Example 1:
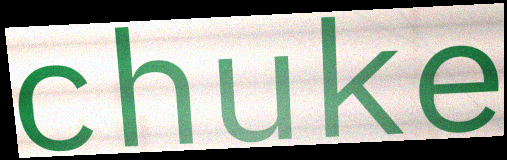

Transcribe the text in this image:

chuke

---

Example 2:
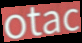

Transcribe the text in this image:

otac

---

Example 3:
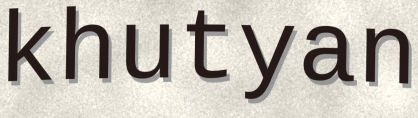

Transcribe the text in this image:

khutyan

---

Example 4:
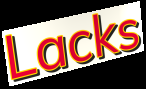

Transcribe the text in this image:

Lacks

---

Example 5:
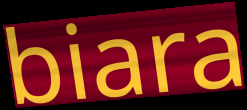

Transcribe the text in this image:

biara